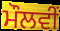
ਮੌਲਵੀਂ